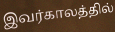
இவர்காலத்தில்